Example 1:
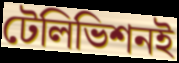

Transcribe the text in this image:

টেলিভিশনই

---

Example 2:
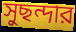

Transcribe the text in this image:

সুছন্দার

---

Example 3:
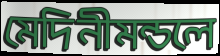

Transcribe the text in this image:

মেদিনীমন্ডলে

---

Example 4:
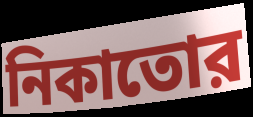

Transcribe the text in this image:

নিকাতোর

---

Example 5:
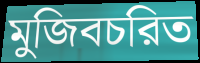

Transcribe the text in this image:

মুজিবচরিত